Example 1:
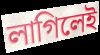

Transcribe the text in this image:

লাগিলেই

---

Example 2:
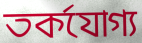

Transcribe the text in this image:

তর্কযোগ্য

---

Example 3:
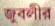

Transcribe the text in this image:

জুবলীর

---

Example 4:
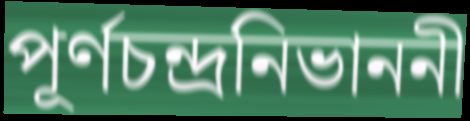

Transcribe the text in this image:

পূর্ণচন্দ্রনিভাননী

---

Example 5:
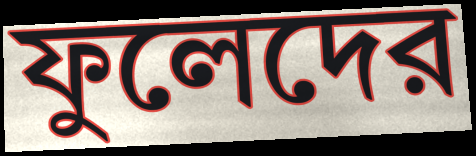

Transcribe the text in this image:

ফুলেদের